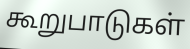
கூறுபாடுகள்